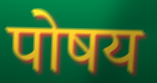
पोषय